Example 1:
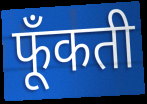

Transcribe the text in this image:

फूँकती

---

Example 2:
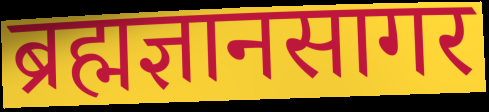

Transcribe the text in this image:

ब्रह्मज्ञानसागर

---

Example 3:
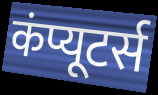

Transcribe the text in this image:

कंप्यूटर्स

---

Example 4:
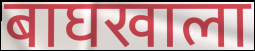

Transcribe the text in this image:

बाघखाला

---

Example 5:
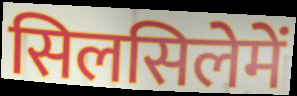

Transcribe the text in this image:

सिलसिलेमें